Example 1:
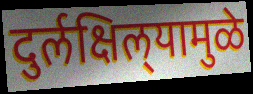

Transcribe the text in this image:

दुर्लक्षिल्यामुळे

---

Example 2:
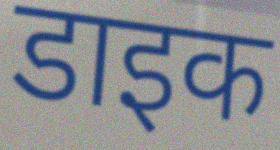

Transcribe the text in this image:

डाइक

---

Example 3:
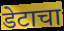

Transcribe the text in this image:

डेटाचा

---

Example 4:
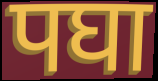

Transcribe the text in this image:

पघा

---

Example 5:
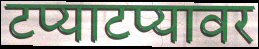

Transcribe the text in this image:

टप्याटप्यावर